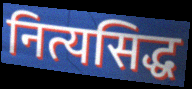
नित्यसिद्ध